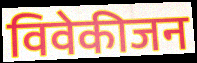
विवेकीजन